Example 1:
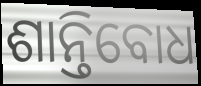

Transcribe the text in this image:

ଶାନ୍ତିବୋଧ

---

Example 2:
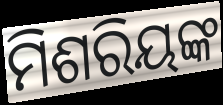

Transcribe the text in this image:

ମିଶରିୟଙ୍କ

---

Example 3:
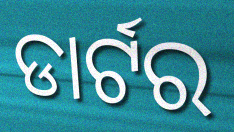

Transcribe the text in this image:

ଡାର୍ଟର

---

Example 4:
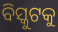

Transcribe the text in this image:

ବିସ୍କୁଟକୁ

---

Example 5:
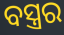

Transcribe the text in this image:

ବସ୍ତ୍ରର